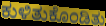
ಕುಳಿತುಕೊಂಡಿತು